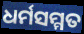
ଧର୍ମସମ୍ମତ